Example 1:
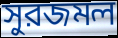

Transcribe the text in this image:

সুরজমল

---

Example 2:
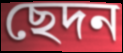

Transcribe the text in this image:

ছেদন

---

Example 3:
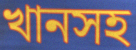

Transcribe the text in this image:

খানসহ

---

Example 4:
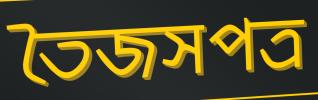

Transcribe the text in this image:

তৈজসপত্র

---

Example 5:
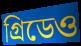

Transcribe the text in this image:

গ্রিডেও